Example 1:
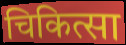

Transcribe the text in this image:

चिकित्सा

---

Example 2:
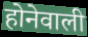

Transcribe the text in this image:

होनेवाली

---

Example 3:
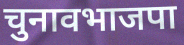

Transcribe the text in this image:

चुनावभाजपा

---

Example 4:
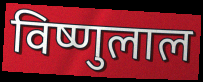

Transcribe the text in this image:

विष्णुलाल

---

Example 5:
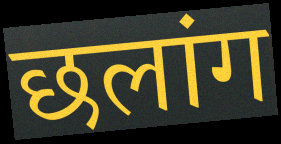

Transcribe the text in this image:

छलांग